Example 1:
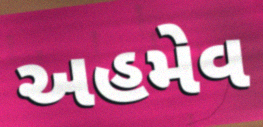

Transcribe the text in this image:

અહમેવ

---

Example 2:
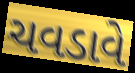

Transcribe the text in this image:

ચવડાવે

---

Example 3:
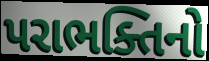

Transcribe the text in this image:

પરાભક્તિનો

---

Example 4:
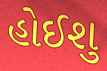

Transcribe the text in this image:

હોઈશુ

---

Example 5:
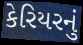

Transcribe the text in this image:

કેરિયરનું